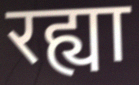
रह्या